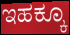
ಇಹಕ್ಕೂ